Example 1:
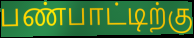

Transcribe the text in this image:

பண்பாட்டிற்கு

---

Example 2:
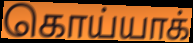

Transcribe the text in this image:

கொய்யாக்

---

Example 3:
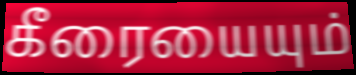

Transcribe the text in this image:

கீரையையும்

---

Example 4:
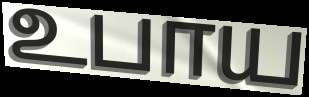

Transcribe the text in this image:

உபாய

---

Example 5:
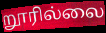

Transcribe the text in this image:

றூரில்லை